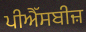
ਪੀਐੱਸਬੀਜ਼